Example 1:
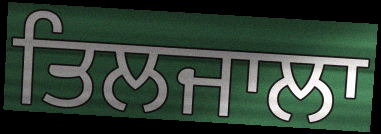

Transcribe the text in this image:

ਤਿਲਜਾਲਾ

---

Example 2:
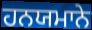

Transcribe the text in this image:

ਹਨਯਮਾਨੇ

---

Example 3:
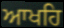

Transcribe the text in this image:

ਆਖਹਿ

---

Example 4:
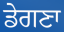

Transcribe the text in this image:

ਡੇਗਣਾ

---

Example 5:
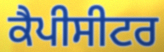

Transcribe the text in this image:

ਕੈਪੀਸੀਟਰ